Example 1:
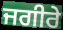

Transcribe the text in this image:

ਜਗੀਰੇ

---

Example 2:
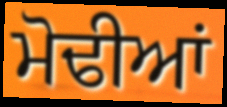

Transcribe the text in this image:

ਮੋਢੀਆਂ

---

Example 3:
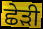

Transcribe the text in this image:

ਛੇੜੀ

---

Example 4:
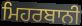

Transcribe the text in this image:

ਮਿਹਰਬਾਨੀ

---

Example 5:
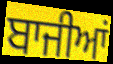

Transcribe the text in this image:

ਬਾਜੀਆਂ